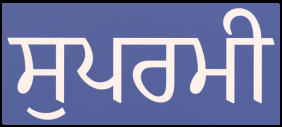
ਸੁਪਰਮੀ